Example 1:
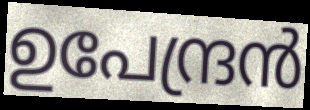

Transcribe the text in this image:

ഉപേന്ദ്രൻ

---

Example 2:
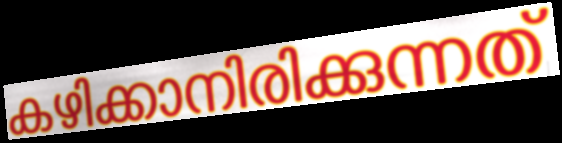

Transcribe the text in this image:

കഴിക്കാനിരിക്കുന്നത്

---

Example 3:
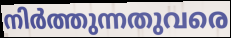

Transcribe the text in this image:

നിർത്തുന്നതുവരെ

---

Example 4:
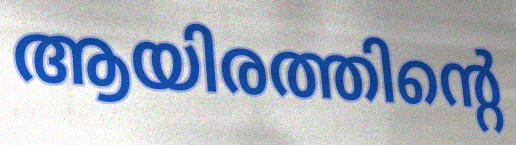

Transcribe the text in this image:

ആയിരത്തിന്റെ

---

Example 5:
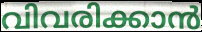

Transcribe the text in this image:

വിവരിക്കാൻ